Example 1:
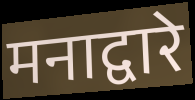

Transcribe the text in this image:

मनाद्वारे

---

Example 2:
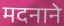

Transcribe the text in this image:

मदनाने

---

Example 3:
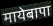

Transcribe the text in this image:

मायेबापा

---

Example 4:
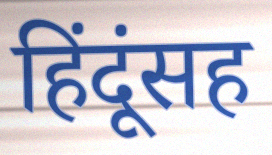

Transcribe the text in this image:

हिंदूंसह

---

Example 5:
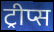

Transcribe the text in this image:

ट्रीप्स